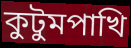
কুটুমপাখি